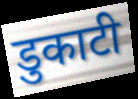
डुकाटी